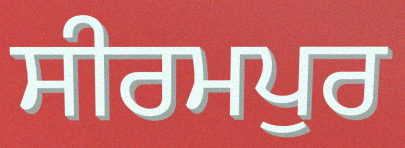
ਸੀਰਮਪੁਰ